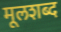
मूलशब्द